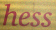
hess